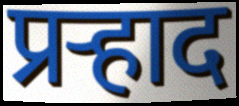
प्रर्‍हाद